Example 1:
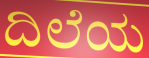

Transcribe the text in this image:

ದಿಲೆಯ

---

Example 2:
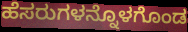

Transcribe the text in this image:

ಹೆಸರುಗಳನ್ನೊಳಗೊಂಡ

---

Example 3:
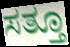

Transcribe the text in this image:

ಸತ್ತೂ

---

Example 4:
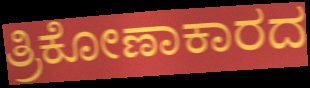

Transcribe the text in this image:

ತ್ರಿಕೋಣಾಕಾರದ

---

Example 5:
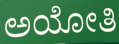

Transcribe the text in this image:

ಅಯೋತಿ